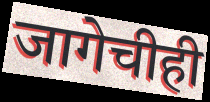
जागेचीही